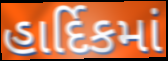
હાર્દિકમાં